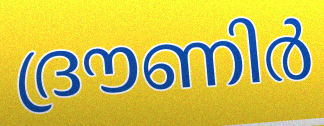
ദ്രൗണിർ